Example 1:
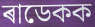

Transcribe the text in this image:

ৰাডেকক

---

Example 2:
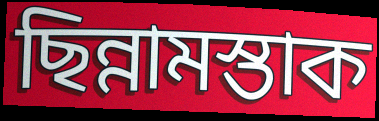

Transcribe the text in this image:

ছিন্নামস্তাক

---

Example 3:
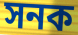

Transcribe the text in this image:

সনক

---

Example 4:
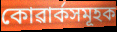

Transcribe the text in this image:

কোৱাৰ্কসমূহক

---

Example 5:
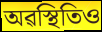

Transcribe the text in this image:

অৱস্থিতিও